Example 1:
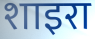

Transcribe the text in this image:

शाइरा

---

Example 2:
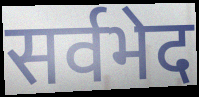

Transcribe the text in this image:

सर्वभेद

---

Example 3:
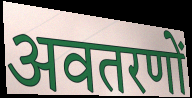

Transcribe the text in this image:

अवतरणों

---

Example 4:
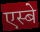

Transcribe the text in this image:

एस्बे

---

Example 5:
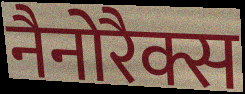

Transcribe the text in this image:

नैनोरैक्स